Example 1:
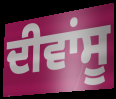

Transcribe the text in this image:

ਦੀਵਾਂਸੂ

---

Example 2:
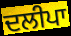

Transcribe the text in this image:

ਦਲੀਪਾ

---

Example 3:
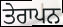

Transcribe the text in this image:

ਤੇਰਾਪਨ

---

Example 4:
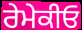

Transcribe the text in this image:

ਰੇਮੇਕੀਓ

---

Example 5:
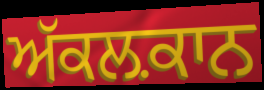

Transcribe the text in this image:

ਅੱਕਲ਼ਕਾਨ